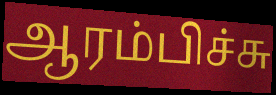
ஆரம்பிச்சு